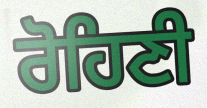
ਰੋਹਿਣੀ